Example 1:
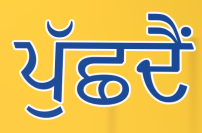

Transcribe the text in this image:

ਪੁੱਛਦੈਂ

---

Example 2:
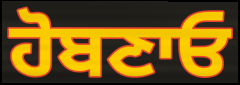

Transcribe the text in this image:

ਹੋਬਣਾਓ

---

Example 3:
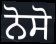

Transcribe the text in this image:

ਨੋਸੋ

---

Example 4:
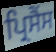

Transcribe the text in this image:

ਪ੍ਰਿਸੈਂਸ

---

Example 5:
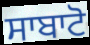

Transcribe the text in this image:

ਸਾਬਾਟੋ